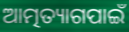
ଆତ୍ମତ୍ୟାଗପାଇଁ